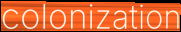
colonization